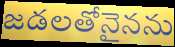
జడలతోనైనను